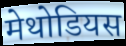
मेथोडियस